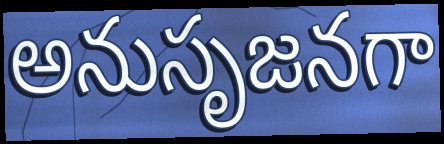
అనుసృజనగా